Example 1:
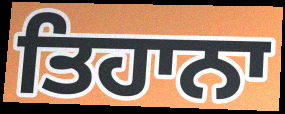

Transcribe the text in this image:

ਤਿਹਾਨਾ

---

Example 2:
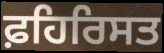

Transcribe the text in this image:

ਫ਼ਹਿਰਿਸਤ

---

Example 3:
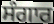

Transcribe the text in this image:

ਸੰਗਾਰ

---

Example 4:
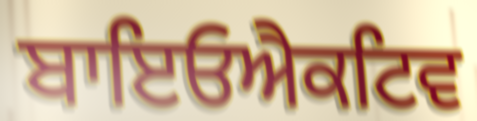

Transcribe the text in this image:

ਬਾਇਓਐਕਟਿਵ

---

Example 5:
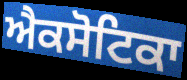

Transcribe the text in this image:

ਐਕਸੋਟਿਕਾ